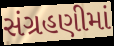
સંગ્રહણીમાં